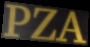
PZA